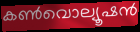
കൺവൊല്യൂഷൻ